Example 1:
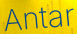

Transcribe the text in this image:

Antar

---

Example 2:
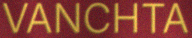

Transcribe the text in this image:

VANCHTA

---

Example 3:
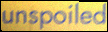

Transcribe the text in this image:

unspoiled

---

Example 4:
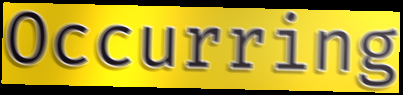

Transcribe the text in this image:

Occurring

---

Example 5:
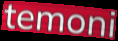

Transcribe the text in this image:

temoni